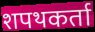
शपथकर्ता